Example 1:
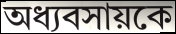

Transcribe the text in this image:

অধ্যবসায়কে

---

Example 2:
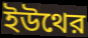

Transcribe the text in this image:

ইউথের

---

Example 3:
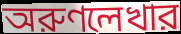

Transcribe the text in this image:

অরুণলেখার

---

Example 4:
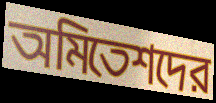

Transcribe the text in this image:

অমিতেশদের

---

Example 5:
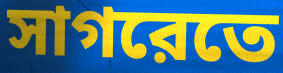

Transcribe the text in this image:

সাগরেতে